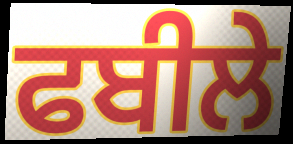
ਫਬੀਲੇ